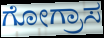
ಗೋಗ್ರಾಸ